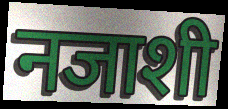
नजाशी